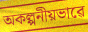
অকল্পনীয়ভাৱে